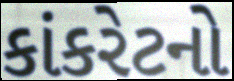
કાંકરેટનો